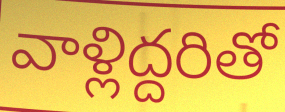
వాళ్లిద్దరితో